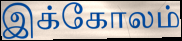
இக்கோலம்